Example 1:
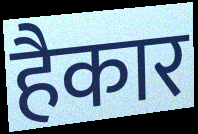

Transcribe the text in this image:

हैकार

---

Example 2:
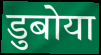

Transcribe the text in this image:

डुबोया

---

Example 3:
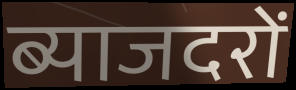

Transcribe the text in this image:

ब्याजदरों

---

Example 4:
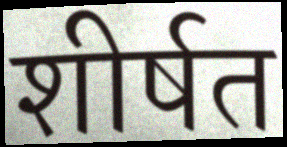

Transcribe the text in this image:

शीर्षत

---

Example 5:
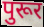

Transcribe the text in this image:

पुरूर